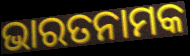
ଭାରତନାମକ